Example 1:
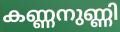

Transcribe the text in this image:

കണ്ണനുണ്ണി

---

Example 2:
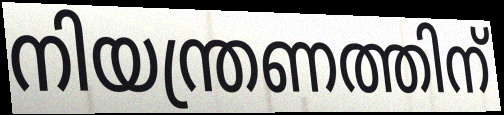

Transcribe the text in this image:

നിയന്ത്രണത്തിന്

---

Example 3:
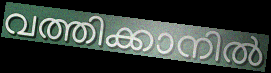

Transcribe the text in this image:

വത്തിക്കാനിൽ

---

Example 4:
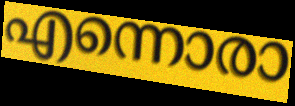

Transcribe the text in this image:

എന്നൊരാ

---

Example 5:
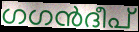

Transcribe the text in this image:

ഗഗൻദീപ്